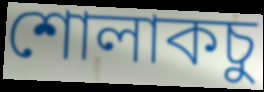
শোলাকচু